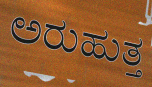
ಅರುಹುತ್ತ